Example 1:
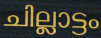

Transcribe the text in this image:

ചില്ലാട്ടം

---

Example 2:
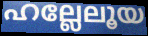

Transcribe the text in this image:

ഹല്ലേലൂയ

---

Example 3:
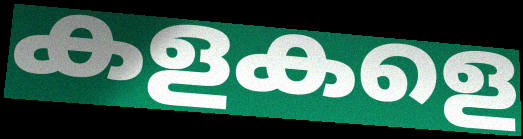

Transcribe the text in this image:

കളകളെ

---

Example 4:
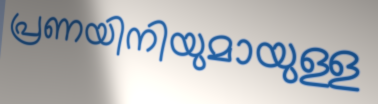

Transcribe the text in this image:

പ്രണയിനിയുമായുള്ള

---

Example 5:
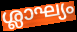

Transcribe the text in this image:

ശ്ലാഘ്യം